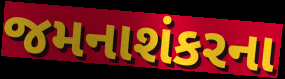
જમનાશંકરના